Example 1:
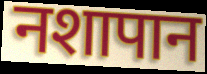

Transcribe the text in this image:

नशापान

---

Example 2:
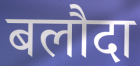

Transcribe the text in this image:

बलौदा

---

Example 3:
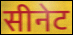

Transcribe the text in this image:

सीनेट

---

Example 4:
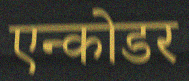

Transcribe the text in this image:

एन्कोडर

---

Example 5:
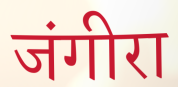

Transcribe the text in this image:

जंगीरा